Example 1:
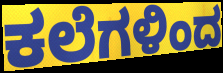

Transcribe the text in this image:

ಕಲೆಗಳಿಂದ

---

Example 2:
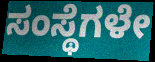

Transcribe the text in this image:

ಸಂಸ್ಥೆಗಳೇ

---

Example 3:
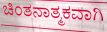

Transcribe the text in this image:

ಚಿಂತನಾತ್ಮಕವಾಗಿ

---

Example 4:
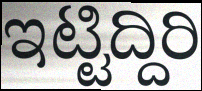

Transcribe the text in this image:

ಇಟ್ಟಿದ್ದಿರಿ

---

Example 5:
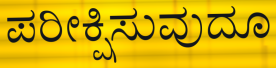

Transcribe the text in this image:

ಪರೀಕ್ಷಿಸುವುದೂ